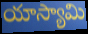
యాస్యామి